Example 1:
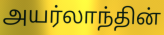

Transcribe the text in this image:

அயர்லாந்தின்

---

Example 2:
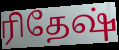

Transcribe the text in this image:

ரிதேஷ்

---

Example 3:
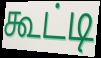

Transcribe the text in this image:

கூட்டி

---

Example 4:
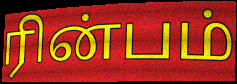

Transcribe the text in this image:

ரின்பம்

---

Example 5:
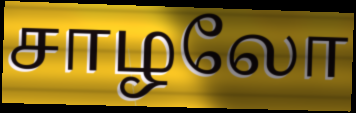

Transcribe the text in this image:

சாழலோ